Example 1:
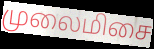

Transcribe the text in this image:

முலைமிசை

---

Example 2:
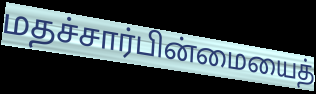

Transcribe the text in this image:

மதச்சார்பின்மையைத்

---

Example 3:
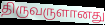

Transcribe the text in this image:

திருவருளானது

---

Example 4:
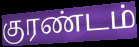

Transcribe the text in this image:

குரண்டம்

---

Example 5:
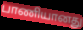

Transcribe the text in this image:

பாணியானது